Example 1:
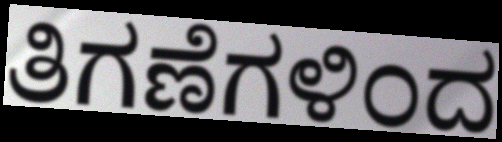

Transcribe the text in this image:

ತಿಗಣೆಗಳಿಂದ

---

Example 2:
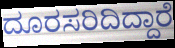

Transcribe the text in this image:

ದೂರಸರಿದಿದ್ದಾರೆ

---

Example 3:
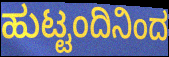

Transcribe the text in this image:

ಹುಟ್ಟಂದಿನಿಂದ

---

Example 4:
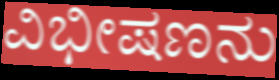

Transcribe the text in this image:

ವಿಭೀಷಣನು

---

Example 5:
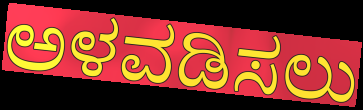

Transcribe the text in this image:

ಅಳವಡಿಸಲು